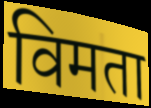
विमता